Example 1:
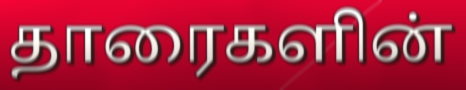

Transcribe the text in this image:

தாரைகளின்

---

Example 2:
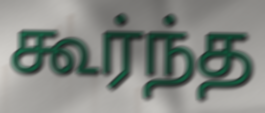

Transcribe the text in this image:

கூர்ந்த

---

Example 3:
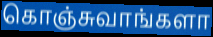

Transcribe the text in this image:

கொஞ்சுவாங்களா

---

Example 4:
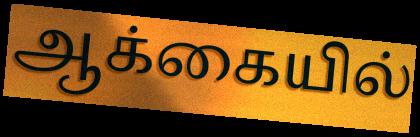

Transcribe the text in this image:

ஆக்கையில்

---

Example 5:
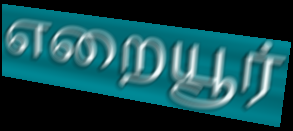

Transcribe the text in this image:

எறையூர்